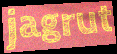
jagrut